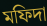
মফিদা